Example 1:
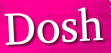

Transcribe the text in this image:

Dosh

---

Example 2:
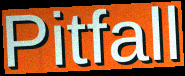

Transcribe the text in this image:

Pitfall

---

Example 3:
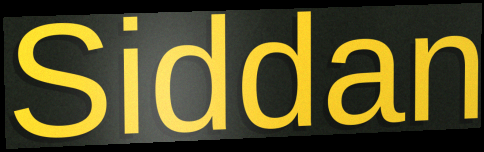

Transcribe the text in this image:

Siddan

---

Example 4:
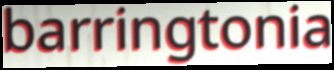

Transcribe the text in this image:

barringtonia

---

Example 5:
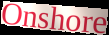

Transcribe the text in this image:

Onshore